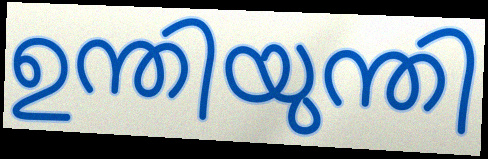
ഉന്തിയുന്തി